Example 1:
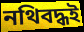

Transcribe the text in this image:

নথিবদ্ধই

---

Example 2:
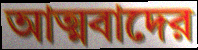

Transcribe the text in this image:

আত্মবাদের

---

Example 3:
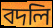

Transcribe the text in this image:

বদলি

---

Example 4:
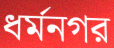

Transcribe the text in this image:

ধর্মনগর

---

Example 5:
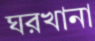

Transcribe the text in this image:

ঘরখানা